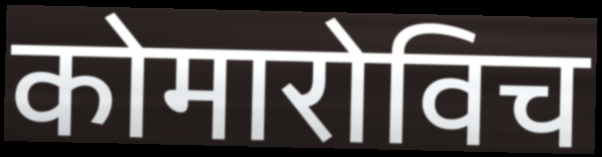
कोमारोविच